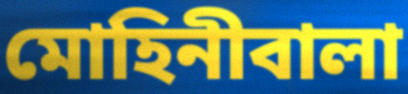
মোহিনীবালা